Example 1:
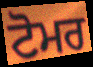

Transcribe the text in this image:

ਟੋਮਰ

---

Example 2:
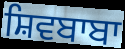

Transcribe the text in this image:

ਸ਼ਿਵਬਾਬਾ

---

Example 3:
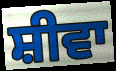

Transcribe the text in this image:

ਸ਼ੀਵਾ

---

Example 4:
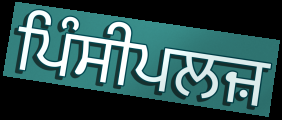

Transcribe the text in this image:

ਪਿੰਸੀਪਲਜ਼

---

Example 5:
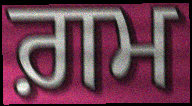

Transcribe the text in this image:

ਗ਼ਮ